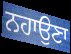
ਨਹਾਉਣਾ